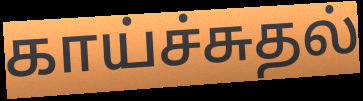
காய்ச்சுதல்